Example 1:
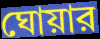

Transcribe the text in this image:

ঘোয়ার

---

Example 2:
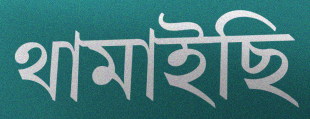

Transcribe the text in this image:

থামাইছি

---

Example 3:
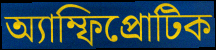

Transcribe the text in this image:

অ্যাম্ফিপ্রোটিক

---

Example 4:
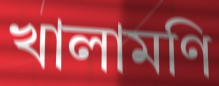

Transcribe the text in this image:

খালামণি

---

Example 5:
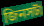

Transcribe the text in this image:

জিনসটা